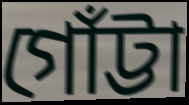
গোঁট্টা